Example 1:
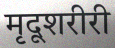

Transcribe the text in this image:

मृदूशरीरी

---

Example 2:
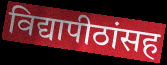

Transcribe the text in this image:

विद्यापीठांसह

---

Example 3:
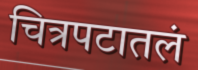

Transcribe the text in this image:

चित्रपटातलं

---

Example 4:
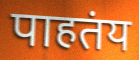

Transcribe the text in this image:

पाहतंय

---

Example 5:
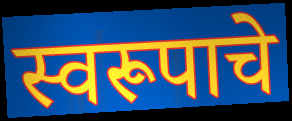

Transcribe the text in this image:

स्वरूपाचे